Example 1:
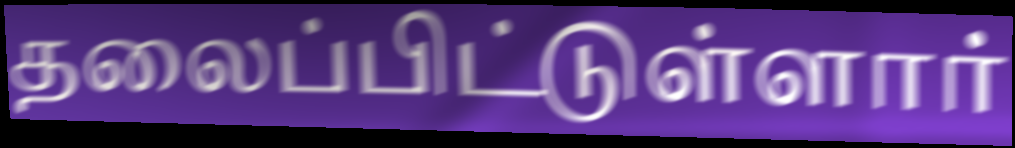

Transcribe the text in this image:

தலைப்பிட்டுள்ளார்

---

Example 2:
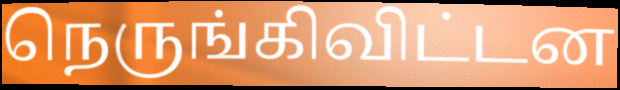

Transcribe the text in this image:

நெருங்கிவிட்டன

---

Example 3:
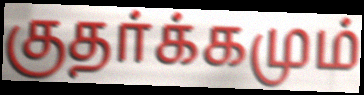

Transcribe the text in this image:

குதர்க்கமும்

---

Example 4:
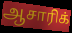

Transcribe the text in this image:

ஆசாரிக்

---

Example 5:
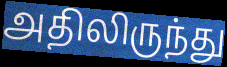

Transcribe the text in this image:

அதிலிருந்து